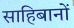
साहिबानों